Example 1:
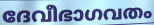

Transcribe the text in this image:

ദേവീഭാഗവതം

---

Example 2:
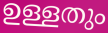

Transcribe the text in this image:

ഉള്ളതും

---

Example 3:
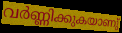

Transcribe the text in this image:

വർണ്ണിക്കുകയാണു്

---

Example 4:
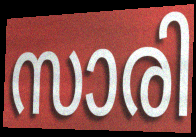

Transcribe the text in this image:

സാരി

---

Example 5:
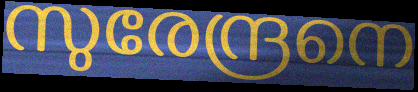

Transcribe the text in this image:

സുരേന്ദ്രനെ